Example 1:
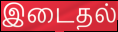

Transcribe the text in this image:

இடைதல்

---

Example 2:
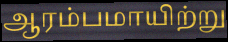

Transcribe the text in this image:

ஆரம்பமாயிற்று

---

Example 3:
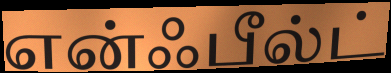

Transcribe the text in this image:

என்ஃபீல்ட்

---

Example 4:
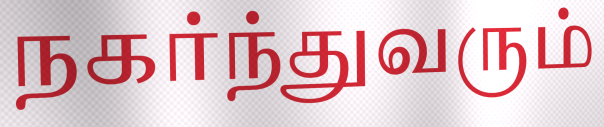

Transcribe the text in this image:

நகர்ந்துவரும்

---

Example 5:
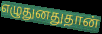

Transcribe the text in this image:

எழுதுனதுதான்